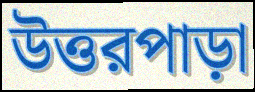
উত্তরপাড়া